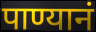
पाण्यानं